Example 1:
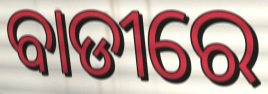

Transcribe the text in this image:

ବାଡୀରେ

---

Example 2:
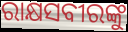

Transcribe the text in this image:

ରାକ୍ଷସବୀରଙ୍କୁ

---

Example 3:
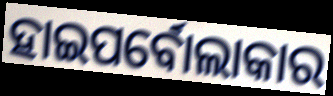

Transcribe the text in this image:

ହାଇପର୍ବୋଲାକାର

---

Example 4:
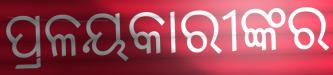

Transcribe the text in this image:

ପ୍ରଳୟକାରୀଙ୍କର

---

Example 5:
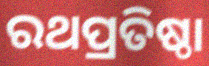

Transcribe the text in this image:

ରଥପ୍ରତିଷ୍ଠା